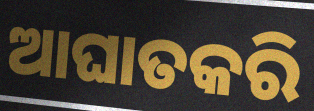
ଆଘାତକରି